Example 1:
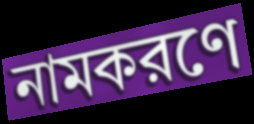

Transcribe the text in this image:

নামকরণে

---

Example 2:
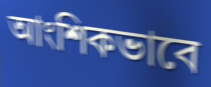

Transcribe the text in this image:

আংশিকভাবে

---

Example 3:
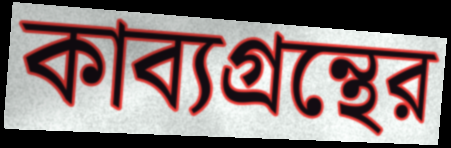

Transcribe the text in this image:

কাব্যগ্রন্থের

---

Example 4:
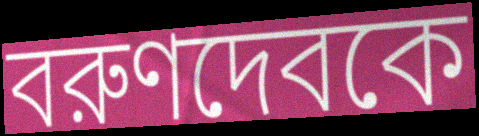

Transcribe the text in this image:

বরুণদেবকে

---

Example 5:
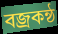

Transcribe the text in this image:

বজ্রকন্ঠ